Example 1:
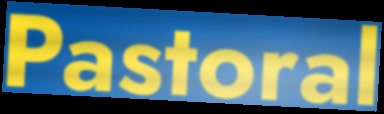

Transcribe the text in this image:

Pastoral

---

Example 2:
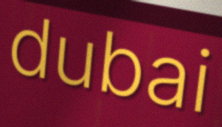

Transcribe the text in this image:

dubai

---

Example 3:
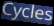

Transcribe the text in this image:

Cycles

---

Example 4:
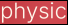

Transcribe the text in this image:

physic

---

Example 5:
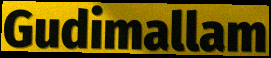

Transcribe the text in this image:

Gudimallam